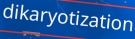
dikaryotization